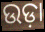
ଉଡ଼ା